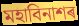
মহাবিনাশৰ